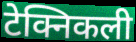
टेक्निकली